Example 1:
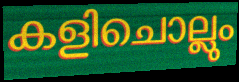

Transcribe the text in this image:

കളിചൊല്ലും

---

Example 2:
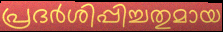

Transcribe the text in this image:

പ്രദർശിപ്പിച്ചതുമായ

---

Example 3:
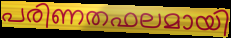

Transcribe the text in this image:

പരിണതഫലമായി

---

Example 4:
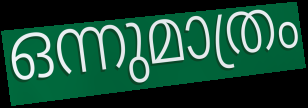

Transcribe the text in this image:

ഒന്നുമാത്രം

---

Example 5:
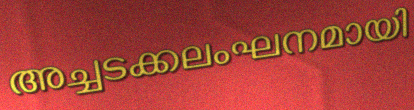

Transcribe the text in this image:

അച്ചടക്കലംഘനമായി